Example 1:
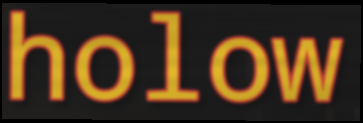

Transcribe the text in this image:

holow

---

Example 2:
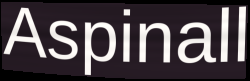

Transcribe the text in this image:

Aspinall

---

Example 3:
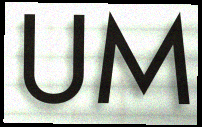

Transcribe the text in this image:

UM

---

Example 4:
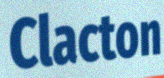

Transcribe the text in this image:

Clacton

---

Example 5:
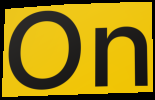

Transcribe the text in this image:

On